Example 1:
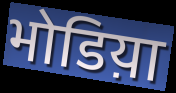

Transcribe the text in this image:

भोडिय़ा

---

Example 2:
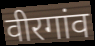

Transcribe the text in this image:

वीरगांव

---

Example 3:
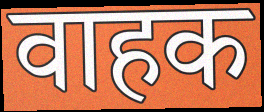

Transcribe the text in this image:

वाहक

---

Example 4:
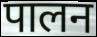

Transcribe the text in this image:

पालन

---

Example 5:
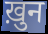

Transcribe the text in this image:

ख़ुन